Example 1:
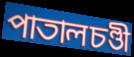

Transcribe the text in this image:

পাতালচণ্ডী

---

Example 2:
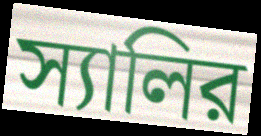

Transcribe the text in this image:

স্যালির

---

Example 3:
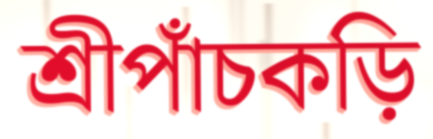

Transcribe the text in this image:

শ্রীপাঁচকড়ি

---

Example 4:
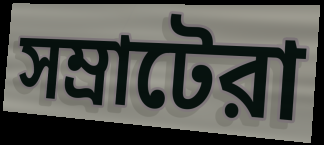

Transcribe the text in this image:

সম্রাটেরা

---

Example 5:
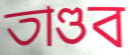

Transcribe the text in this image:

তাণ্ডব